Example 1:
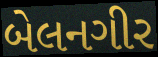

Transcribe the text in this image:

બેલનગીર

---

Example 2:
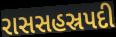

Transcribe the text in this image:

રાસસહસ્રપદી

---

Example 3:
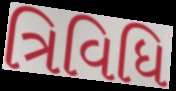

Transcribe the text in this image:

ત્રિવિધિ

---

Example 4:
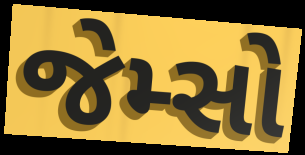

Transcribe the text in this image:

જેમ્સો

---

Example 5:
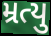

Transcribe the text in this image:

મ્રત્યુ